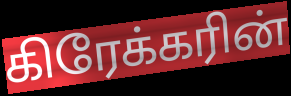
கிரேக்கரின்